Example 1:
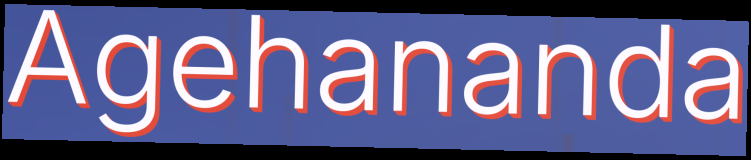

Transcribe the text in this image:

Agehananda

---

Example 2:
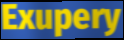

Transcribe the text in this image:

Exupery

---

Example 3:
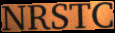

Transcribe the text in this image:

NRSTC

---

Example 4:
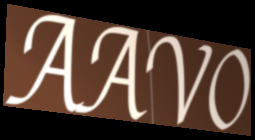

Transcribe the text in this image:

AAVO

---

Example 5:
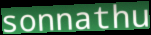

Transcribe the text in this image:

sonnathu